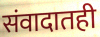
संवादातही